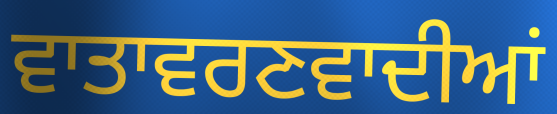
ਵਾਤਾਵਰਣਵਾਦੀਆਂ